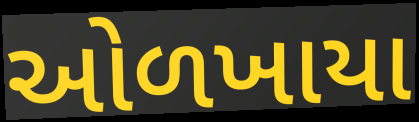
ઓળખાયા